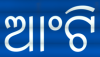
ଆଂଟି